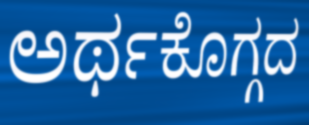
ಅರ್ಥಕೊಗ್ಗದ